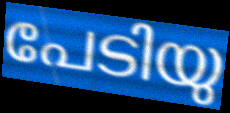
പേടിയു